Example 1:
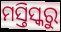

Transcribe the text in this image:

ମସ୍ତିସ୍କରୁ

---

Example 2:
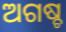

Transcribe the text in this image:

ଅଗଷ୍ଚ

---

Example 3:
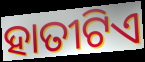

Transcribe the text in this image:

ହାତୀଟିଏ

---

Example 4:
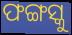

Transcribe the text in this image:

ଫଙ୍ଗସ୍କୁ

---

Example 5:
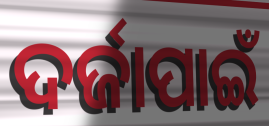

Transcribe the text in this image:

ଦର୍ଜାପାଇଁ